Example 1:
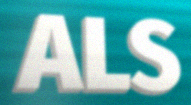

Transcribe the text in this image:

ALS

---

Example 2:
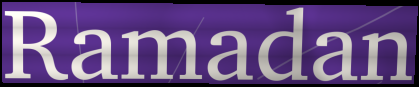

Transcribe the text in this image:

Ramadan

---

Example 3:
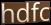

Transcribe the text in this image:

hdfc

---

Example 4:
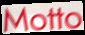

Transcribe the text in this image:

Motto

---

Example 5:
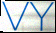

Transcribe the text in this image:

VY